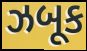
ઝબૂક